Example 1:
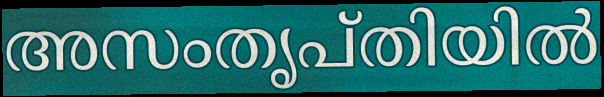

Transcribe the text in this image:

അസംതൃപ്തിയിൽ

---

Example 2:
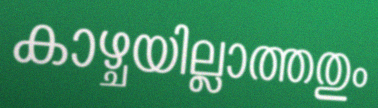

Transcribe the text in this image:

കാഴ്ചയില്ലാത്തതും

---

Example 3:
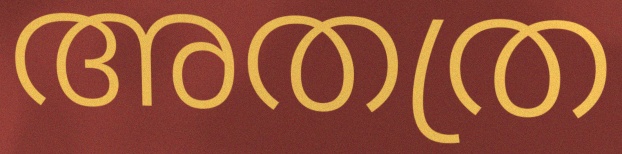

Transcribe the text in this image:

അതത്ര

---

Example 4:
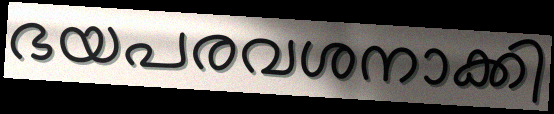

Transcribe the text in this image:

ഭയപരവശനാക്കി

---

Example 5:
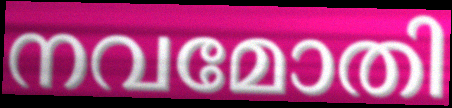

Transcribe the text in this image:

നവമോതി